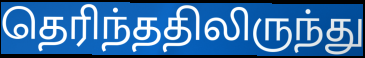
தெரிந்ததிலிருந்து